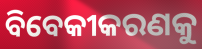
ବିବେକୀକରଣକୁ